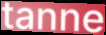
tanne